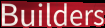
Builders